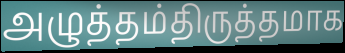
அழுத்தம்திருத்தமாக